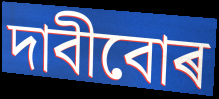
দাবীবোৰ